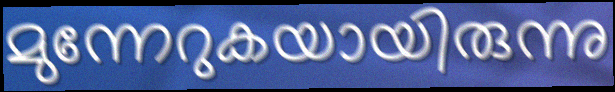
മുന്നേറുകയായിരുന്നു